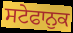
ਸਟੇਫਾਨੁਕ